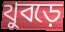
থুবড়ে